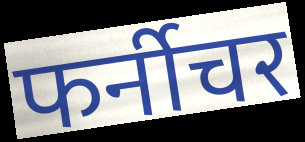
फर्नीचर